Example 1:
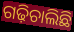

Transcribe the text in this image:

ଗଢ଼ିଚାଲିଛି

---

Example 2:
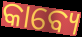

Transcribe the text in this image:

କାବ୍ୟେ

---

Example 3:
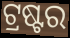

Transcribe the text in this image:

ଟ୍ରଷ୍ଟର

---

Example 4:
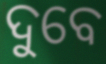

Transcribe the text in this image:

ଦୁବେ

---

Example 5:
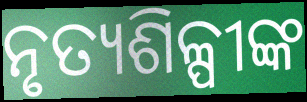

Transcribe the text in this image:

ନୃତ୍ୟଶିଳ୍ପୀଙ୍କ